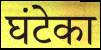
घंटेका